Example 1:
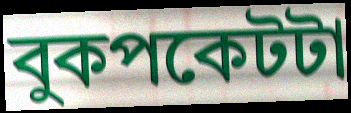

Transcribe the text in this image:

বুকপকেটটা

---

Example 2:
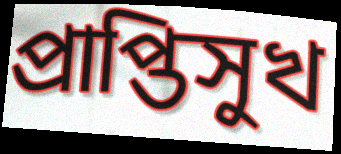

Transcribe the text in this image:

প্রাপ্তিসুখ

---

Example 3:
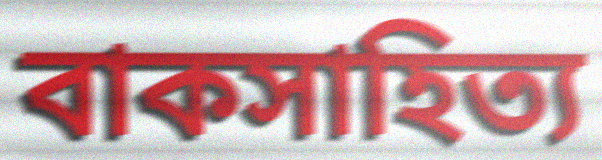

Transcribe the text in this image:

বাকসাহিত্য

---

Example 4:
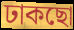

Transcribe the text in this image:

ঢাকছো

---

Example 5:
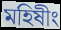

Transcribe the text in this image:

মহিষীং